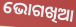
ଭୋଗଖିଆ